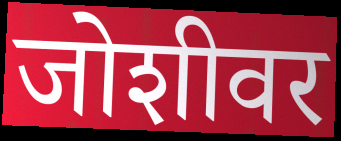
जोशीवर